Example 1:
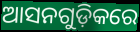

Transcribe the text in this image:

ଆସନଗୁଡ଼ିକରେ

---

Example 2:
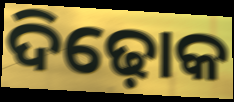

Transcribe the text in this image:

ଦିଢ଼ୋକ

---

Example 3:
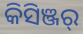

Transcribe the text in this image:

କିସିଞ୍ଜର୍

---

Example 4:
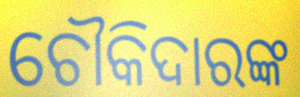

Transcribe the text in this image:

ଚୌକିଦାରଙ୍କ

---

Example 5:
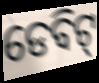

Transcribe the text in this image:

ଡେବିଟ୍